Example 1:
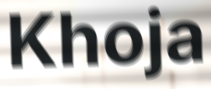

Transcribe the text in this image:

Khoja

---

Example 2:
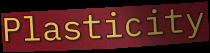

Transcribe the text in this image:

Plasticity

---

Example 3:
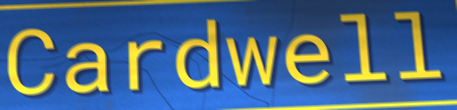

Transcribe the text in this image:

Cardwell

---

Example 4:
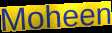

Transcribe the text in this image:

Moheen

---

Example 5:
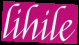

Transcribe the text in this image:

lihile